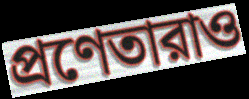
প্রণেতারাও